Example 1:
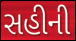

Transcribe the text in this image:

સહીની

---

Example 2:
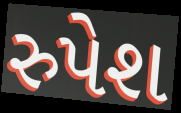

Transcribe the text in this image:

રુપેશ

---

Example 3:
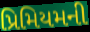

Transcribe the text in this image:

પ્રિમિયમની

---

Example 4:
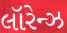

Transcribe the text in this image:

લૉરેન્ઝ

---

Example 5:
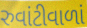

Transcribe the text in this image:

રુવાંટીવાળાં